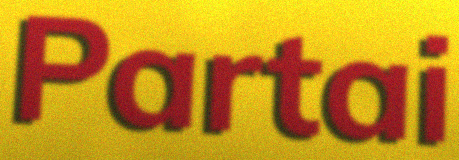
Partai